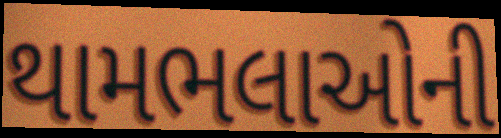
થામભલાઓની